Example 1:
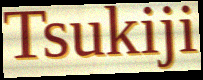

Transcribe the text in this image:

Tsukiji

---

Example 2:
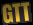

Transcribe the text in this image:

GTT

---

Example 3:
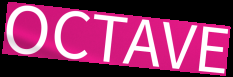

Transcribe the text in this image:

OCTAVE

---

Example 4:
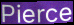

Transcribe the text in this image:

Pierce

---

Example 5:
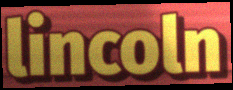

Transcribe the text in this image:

lincoln